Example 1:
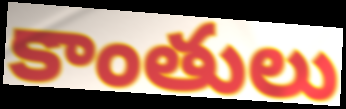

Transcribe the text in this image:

కాంతులు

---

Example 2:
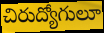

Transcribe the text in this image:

చిరుద్యోగులూ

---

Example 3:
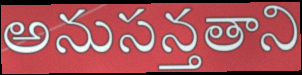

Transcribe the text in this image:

అనుసన్తతాని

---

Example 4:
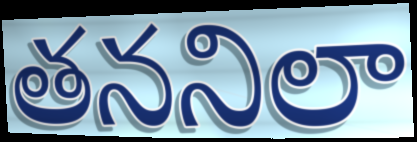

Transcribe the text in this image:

తననిలా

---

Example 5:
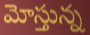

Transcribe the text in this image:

మోస్తున్న